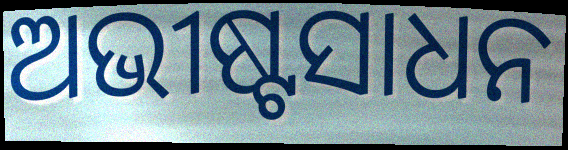
ଅଭୀଷ୍ଟସାଧନ